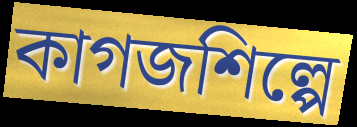
কাগজশিল্পে